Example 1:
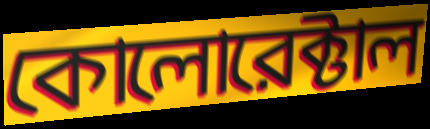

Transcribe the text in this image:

কোলোরেক্টাল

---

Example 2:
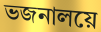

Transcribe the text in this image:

ভজনালয়ে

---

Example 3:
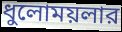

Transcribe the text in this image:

ধুলোময়লার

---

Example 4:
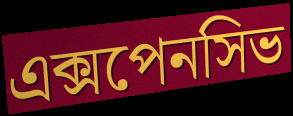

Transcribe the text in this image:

এক্সপেনসিভ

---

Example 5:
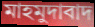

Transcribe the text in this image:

মাহমুদাবাদ